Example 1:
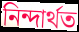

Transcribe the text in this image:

নিন্দাৰ্থত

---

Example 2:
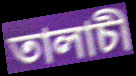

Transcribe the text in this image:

তালাচী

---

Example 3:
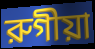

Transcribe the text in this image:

ৰুগীয়া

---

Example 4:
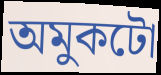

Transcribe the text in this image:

অমুকটো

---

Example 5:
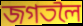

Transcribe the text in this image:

জগতলৈ